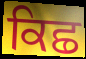
ਕਿਛ